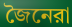
জৈনেরা